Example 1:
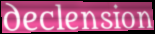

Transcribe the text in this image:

declension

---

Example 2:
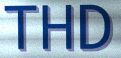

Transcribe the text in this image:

THD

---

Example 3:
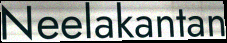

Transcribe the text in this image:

Neelakantan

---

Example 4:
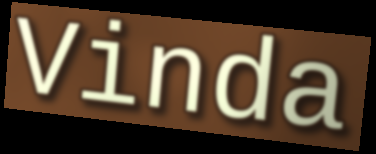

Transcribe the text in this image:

Vinda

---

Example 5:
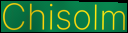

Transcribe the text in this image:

Chisolm